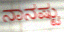
ನಾನಷ್ಟು